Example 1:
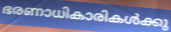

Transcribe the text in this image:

ഭരണാധികാരികൾക്കു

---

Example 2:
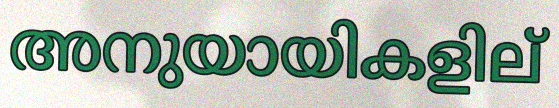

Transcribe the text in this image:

അനുയായികളില്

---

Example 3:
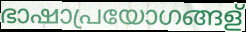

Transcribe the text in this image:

ഭാഷാപ്രയോഗങ്ങള്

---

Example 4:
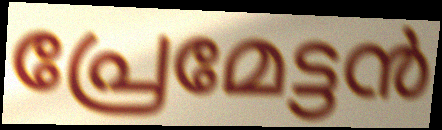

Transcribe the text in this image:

പ്രേമേട്ടൻ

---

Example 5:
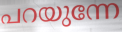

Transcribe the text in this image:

പറയുന്നേ